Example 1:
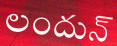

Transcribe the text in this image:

లందున్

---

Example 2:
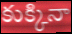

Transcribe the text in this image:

కుక్కినా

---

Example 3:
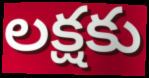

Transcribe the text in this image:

లక్షకు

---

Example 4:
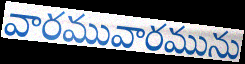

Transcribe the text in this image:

వారమువారమును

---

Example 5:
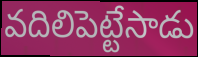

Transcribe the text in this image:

వదిలిపెట్టేసాడు